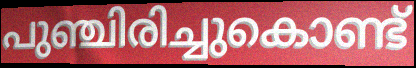
പുഞ്ചിരിച്ചുകൊണ്ട്